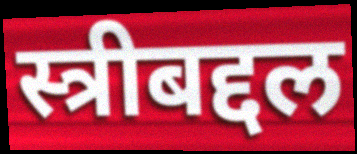
स्त्रीबद्दल